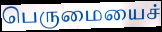
பெருமையைச்